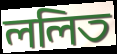
ললিত